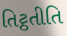
તિટ્ઠતીતિ